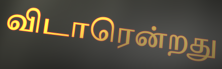
விடாரென்றது